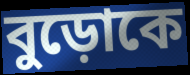
বুড়োকে